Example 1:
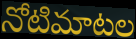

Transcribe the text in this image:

నోటిమాటల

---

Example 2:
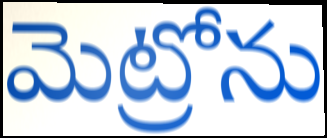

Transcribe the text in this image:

మెట్రోను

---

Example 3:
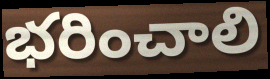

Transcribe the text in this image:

భరించాలి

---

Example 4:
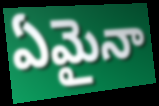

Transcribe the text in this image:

ఏమైనా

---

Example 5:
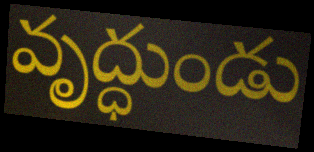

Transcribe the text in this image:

వృద్ధుండు